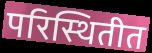
परिस्थितीत